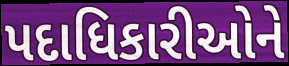
પદાધિકારીઓને